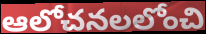
ఆలోచనలలోంచి